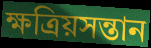
ক্ষত্রিয়সন্তান